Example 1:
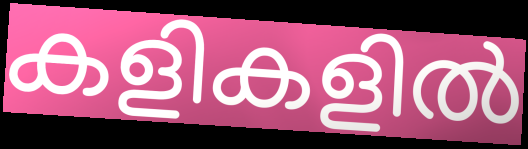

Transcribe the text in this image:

കളികളിൽ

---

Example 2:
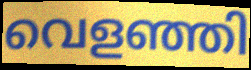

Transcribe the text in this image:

വെളഞ്ഞി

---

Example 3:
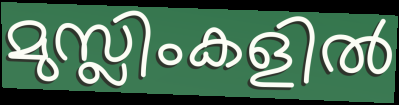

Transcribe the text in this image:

മുസ്ലിംകളിൽ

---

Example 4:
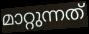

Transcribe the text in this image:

മാറ്റുന്നത്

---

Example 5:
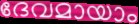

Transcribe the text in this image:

ദേവമായാം